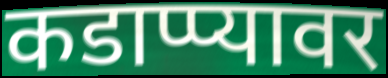
कडाप्प्यावर